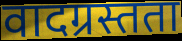
वादग्रस्तता